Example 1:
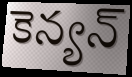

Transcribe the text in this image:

కెన్యన్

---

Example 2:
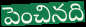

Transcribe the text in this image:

పెంచినది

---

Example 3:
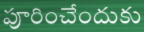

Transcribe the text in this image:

పూరించేందుకు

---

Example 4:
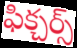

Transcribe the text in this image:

ఫిక్చర్స్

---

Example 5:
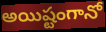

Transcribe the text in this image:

అయిష్టంగానో